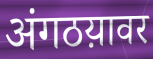
अंगठय़ावर